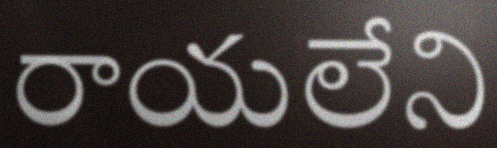
రాయలేని